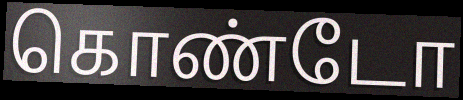
கொண்டோ